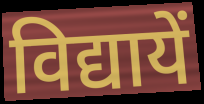
विद्यायें